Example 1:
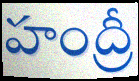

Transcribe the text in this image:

హంద్రీ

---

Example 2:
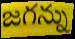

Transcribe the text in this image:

జగన్ను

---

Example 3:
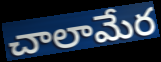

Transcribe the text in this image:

చాలామేర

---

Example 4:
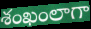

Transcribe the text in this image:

శంఖంలాగా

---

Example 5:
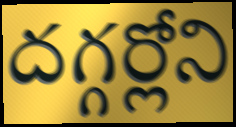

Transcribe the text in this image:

దగ్గర్లోని